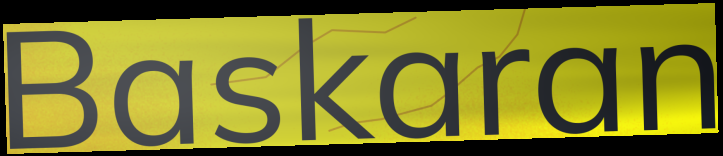
Baskaran